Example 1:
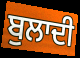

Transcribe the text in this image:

ਬੁਲਾਦੀ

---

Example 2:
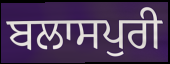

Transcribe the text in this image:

ਬਲਾਸਪੁਰੀ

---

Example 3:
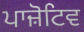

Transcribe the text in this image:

ਪਾਜ਼ੋਟਿਵ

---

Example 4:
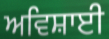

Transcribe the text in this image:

ਅਵਿਸ਼ਾਈ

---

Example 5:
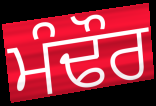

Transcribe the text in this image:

ਮੰਢੌਰ